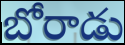
బోరాడు